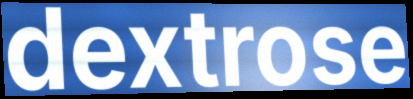
dextrose